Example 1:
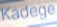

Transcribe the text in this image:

Kadege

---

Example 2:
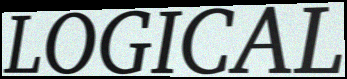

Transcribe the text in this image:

LOGICAL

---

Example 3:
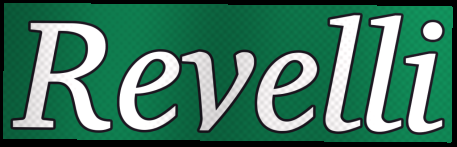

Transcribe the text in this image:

Revelli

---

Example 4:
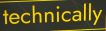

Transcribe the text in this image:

technically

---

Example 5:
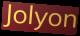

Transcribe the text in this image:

Jolyon